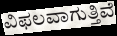
ವಿಫಲವಾಗುತ್ತಿವೆ